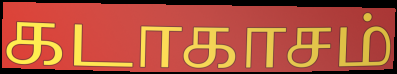
கடாகாசம்